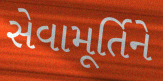
સેવામૂર્તિને